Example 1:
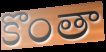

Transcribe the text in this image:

కొంతా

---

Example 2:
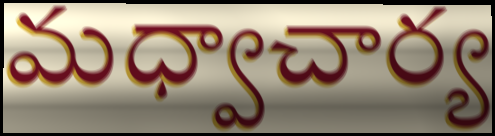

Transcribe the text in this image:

మధ్వాచార్య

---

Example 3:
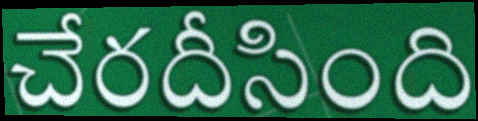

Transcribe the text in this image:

చేరదీసింది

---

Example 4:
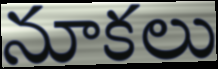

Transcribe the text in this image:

నూకలు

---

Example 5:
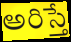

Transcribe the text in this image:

అరిస్తే